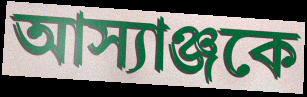
আস্যাঞ্জকে